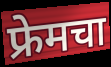
फ्रेमचा